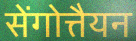
सेंगोत्तैयन